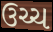
ઉચ્ચ